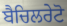
ਬੈਚਿਲਰੇਟੋ